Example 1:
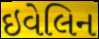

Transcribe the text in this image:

ઇવેલિન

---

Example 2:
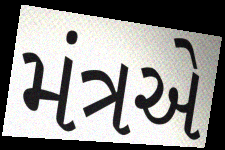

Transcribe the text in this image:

મંત્રએ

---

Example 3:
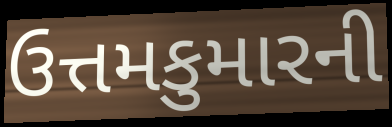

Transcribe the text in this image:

ઉત્તમકુમારની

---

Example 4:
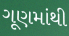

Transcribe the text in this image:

ગૂણમાંથી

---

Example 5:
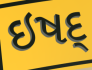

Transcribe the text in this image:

ઇષદ્